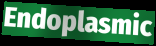
Endoplasmic